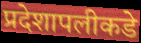
प्रदेशापलीकडे